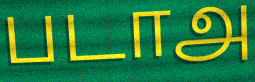
படாஅ